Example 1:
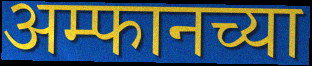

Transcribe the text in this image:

अम्फानच्या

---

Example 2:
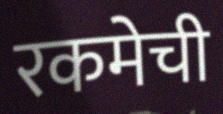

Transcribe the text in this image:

रकमेची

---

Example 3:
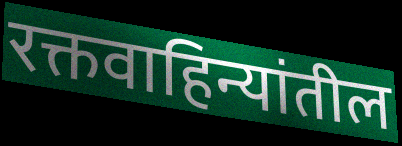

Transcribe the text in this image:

रक्तवाहिन्यांतील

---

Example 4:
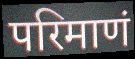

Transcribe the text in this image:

परिमाणं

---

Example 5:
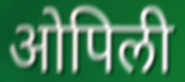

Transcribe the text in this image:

ओपिली